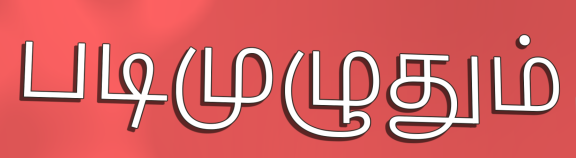
படிமுழுதும்